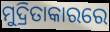
ମୁଦ୍ରିତାକାରରେ